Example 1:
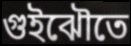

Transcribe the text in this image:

গুইঝৌতে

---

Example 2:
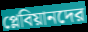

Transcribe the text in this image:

প্লেবিয়ানদের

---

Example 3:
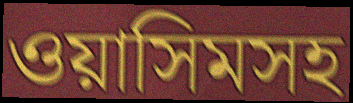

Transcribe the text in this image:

ওয়াসিমসহ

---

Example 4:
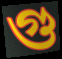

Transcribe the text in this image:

গু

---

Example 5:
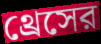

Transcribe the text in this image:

থ্রেসের